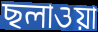
ছলাওয়া